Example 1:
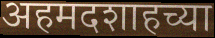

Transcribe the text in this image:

अहमदशाहच्या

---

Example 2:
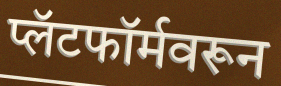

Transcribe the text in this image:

प्लॅटफॉर्मवरून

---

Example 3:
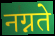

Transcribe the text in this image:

नग्नते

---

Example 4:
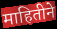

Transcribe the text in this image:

माहितीने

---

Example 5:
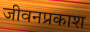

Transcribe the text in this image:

जीवनप्रकाश